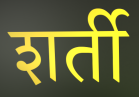
शर्ती